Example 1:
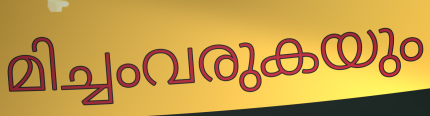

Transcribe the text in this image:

മിച്ചംവരുകയും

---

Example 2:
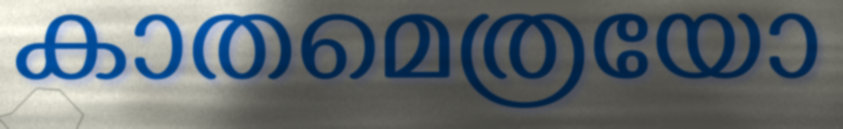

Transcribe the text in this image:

കാതമെത്രയോ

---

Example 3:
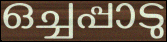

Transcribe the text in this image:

ഒച്ചപ്പാടു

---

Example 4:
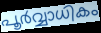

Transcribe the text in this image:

പൂർവ്വാധികം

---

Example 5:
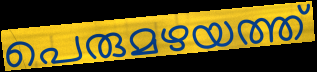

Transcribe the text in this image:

പെരുമഴയത്ത്